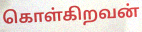
கொள்கிறவன்